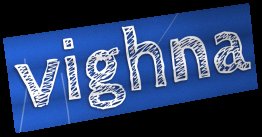
vighna